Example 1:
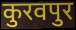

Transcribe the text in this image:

कुरवपुर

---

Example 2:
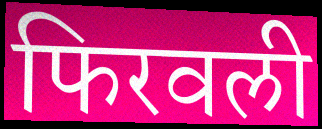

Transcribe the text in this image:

फिरवली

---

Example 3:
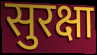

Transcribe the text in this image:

सुरक्षा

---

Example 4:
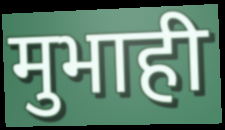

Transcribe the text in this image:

मुभाही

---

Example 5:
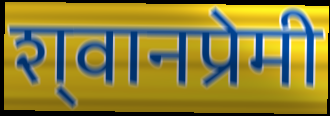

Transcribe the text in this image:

श्वानप्रेमी